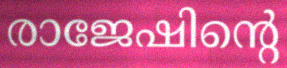
രാജേഷിന്റെ